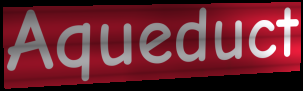
Aqueduct